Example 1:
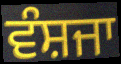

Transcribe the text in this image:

ਵੰਸ਼ਜਾ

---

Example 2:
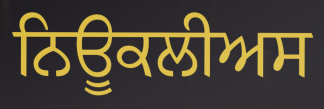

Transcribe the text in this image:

ਨਿਊਕਲੀਅਸ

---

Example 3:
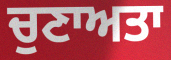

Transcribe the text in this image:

ਚੁਣਾਅਤਾ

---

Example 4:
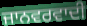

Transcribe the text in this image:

ਜਾਨਵਰਵਾਦੀ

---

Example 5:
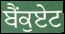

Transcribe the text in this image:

ਬੈਂਕੁਏਟ